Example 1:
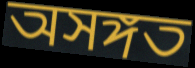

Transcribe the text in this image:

অসঙ্গত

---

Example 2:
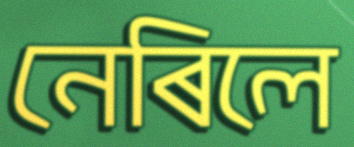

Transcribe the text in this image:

নেৰিলে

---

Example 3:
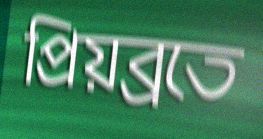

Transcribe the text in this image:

প্ৰিয়ব্ৰতে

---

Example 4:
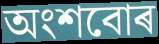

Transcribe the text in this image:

অংশবোৰ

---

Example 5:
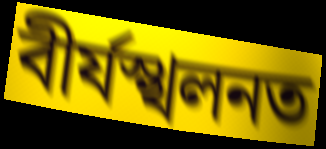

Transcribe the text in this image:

বীৰ্যস্খলনত